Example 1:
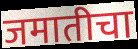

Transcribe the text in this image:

जमातीचा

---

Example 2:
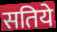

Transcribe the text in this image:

सतिये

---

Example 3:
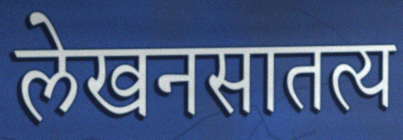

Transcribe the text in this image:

लेखनसातत्य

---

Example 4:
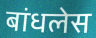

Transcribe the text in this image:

बांधलेस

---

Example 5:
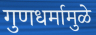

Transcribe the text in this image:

गुणधर्मामुळे